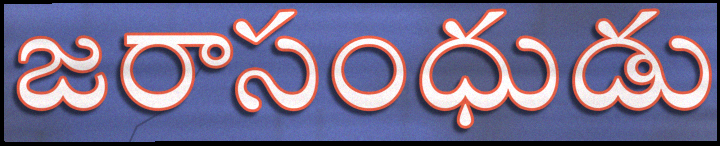
జరాసంధుడు